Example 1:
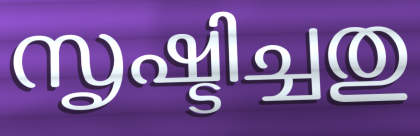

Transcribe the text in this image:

സൃഷ്ടിച്ചതു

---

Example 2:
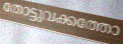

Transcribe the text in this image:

തോട്ടുവക്കത്തോ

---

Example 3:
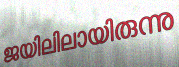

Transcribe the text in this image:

ജയിലിലായിരുന്നു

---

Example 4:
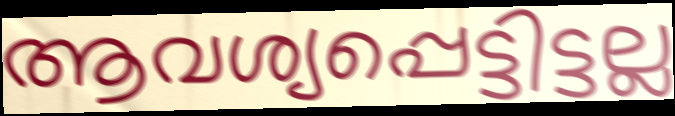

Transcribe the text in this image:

ആവശ്യപ്പെട്ടിട്ടല്ല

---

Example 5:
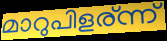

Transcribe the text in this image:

മാറുപിളര്ന്ന്